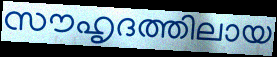
സൗഹൃദത്തിലായ